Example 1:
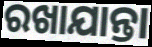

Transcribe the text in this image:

ରଖାଯାନ୍ତା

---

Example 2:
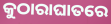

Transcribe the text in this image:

କୁଠାରାଘାତରେ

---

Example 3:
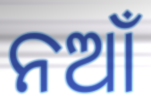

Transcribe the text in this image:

ନଆଁ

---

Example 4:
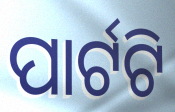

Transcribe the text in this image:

ପାର୍ଟଟି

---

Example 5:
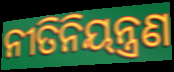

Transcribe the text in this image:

ନୀତିନିୟନ୍ତ୍ରଣ